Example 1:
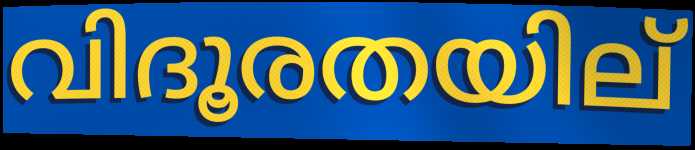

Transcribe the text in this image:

വിദൂരതയില്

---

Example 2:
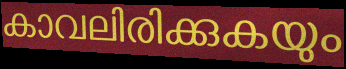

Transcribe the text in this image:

കാവലിരിക്കുകയും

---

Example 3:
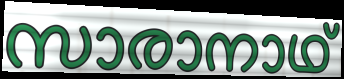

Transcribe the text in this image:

സാരാനാഥ്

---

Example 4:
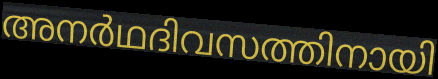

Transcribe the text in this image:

അനർഥദിവസത്തിനായി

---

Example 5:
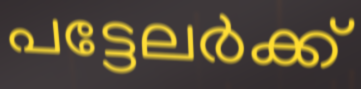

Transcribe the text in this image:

പട്ടേലർക്ക്